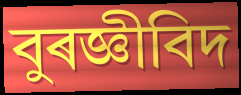
বুৰজ্ঞীবিদ